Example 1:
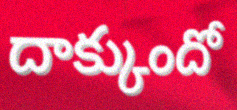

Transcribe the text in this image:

దాక్కుందో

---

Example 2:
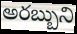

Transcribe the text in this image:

అరబ్బుని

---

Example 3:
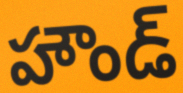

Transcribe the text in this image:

హౌండ్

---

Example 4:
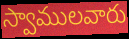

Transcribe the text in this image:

స్వాములవారు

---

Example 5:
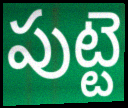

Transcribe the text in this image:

పుట్టె